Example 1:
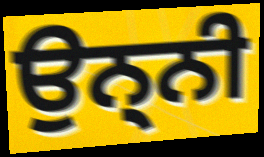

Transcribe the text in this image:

ਉਨ੍ਨੀ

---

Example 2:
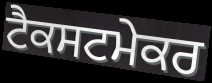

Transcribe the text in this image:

ਟੈਕਸਟਮੇਕਰ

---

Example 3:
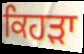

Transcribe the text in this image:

ਕਿਹੜਾ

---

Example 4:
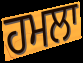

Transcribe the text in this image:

ਹਮਲਾ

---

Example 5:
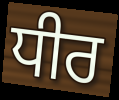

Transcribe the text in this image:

ਧੀਰ